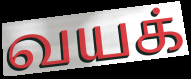
வயக்